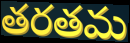
తరతమ